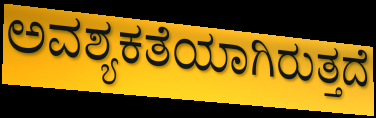
ಅವಶ್ಯಕತೆಯಾಗಿರುತ್ತದೆ